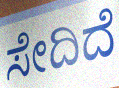
ಸೇದಿದೆ